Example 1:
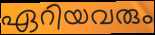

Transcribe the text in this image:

ഏറിയവരും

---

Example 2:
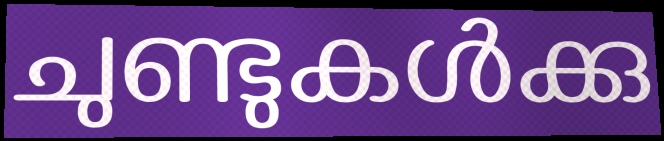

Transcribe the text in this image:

ചുണ്ടുകൾക്കു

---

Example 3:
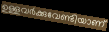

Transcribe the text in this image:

ഉള്ളവർക്കുവേണ്ടിയാണ്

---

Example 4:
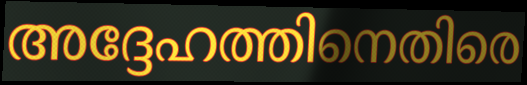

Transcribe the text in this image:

അദ്ദേഹത്തിനെതിരെ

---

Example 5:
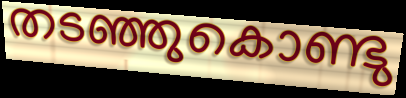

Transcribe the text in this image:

തടഞ്ഞുകൊണ്ടു